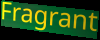
Fragrant